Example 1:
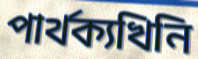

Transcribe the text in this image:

পাৰ্থক্যখিনি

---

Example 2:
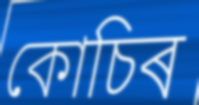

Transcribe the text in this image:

কোচিৰ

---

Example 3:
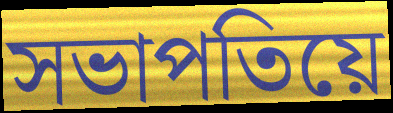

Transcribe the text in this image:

সভাপতিয়ে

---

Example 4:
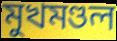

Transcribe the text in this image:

মুখমণ্ডল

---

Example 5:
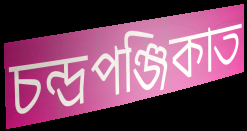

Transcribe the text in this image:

চন্দ্ৰপঞ্জিকাত